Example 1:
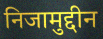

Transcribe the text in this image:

निजामुद्दीन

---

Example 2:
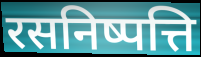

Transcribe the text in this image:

रसनिष्पत्ति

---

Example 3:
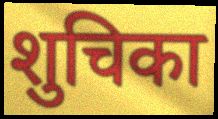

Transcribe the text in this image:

शुचिका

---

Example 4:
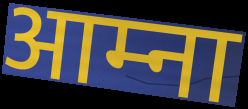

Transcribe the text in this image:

आम्ना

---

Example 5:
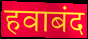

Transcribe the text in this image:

हवाबंद